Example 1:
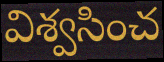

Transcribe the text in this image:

విశ్వసించ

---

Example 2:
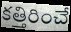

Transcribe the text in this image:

కత్తిరించే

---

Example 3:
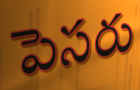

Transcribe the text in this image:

పెసరు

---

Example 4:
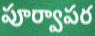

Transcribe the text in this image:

పూర్వాపర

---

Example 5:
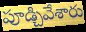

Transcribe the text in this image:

పూడ్చివేశారు